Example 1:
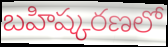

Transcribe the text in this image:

బహిష్కరణలో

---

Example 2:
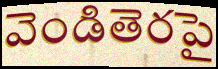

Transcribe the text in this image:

వెండితెరపై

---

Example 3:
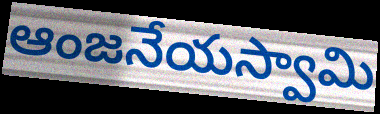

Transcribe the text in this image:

ఆంజనేయస్వామి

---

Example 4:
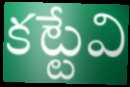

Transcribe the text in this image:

కట్టేవి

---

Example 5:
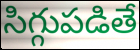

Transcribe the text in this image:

సిగ్గుపడితే